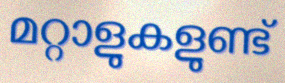
മറ്റാളുകളുണ്ട്